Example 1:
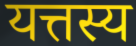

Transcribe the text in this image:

यत्तस्य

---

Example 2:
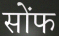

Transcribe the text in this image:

सोंफ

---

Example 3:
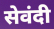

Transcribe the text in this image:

सेवंदी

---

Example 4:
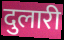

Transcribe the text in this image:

दुलारी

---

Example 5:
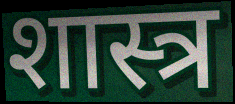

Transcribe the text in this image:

शास्त्र